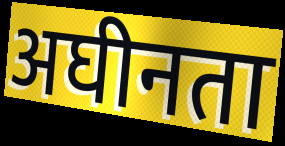
अघीनता